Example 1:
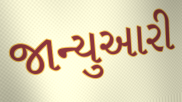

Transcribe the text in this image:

જાન્યુઆરી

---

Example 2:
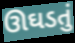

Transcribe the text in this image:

ઊઘડતું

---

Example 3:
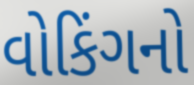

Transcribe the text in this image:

વોકિંગનો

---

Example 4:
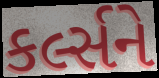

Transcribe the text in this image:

કર્લ્સને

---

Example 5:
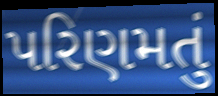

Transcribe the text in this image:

પરિણમતું